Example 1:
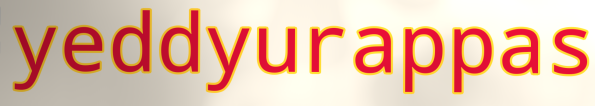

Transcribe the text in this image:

yeddyurappas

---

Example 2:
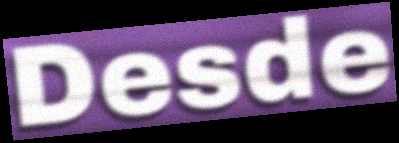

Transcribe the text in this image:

Desde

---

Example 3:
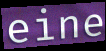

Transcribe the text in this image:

eine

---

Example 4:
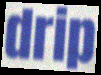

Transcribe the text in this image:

drip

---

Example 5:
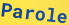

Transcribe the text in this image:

Parole